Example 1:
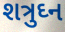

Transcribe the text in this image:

શત્રુઘ્ન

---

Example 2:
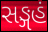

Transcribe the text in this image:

સઙ્ગહં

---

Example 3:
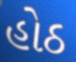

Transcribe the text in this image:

હોઠ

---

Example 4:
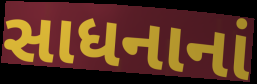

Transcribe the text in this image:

સાધનાનાં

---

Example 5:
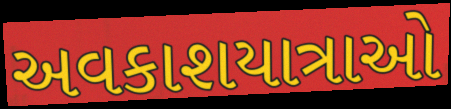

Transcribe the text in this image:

અવકાશયાત્રાઓ